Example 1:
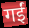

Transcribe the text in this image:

गईं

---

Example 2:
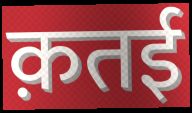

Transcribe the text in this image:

क़तई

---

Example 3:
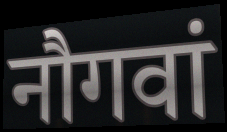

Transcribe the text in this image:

नौगवां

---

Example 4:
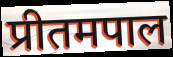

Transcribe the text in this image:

प्रीतमपाल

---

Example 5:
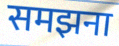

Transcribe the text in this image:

समझना